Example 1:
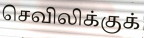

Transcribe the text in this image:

செவிலிக்குக்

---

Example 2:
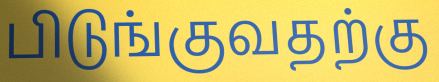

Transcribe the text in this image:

பிடுங்குவதற்கு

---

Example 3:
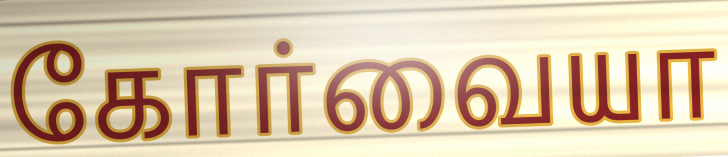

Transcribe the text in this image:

கோர்வையா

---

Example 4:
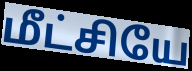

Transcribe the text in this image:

மீட்சியே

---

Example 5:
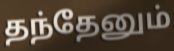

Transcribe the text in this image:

தந்தேனும்